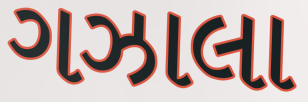
ગઝાલા